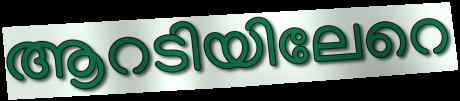
ആറടിയിലേറെ